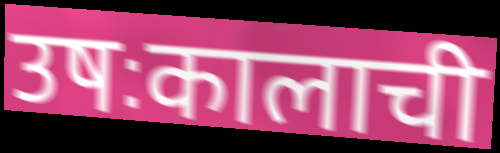
उषःकालाची